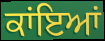
ਕਾਂਇਆਂ